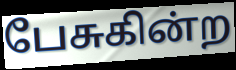
பேசுகின்ற